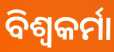
ବିଶ୍ବକର୍ମା